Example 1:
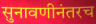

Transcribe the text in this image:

सुनावणीनंतरच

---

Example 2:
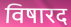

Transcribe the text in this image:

विषारद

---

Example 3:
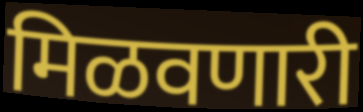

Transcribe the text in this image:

मिळवणारी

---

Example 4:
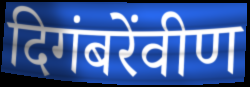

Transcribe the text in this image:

दिगंबरेंवीण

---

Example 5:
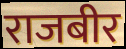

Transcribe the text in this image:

राजबीर